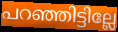
പറഞ്ഞിട്ടില്ലേ